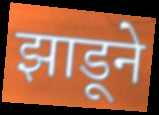
झाडूने